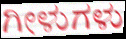
ಗೀಳುಗಳು